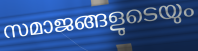
സമാജങ്ങളുടെയും